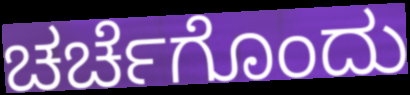
ಚರ್ಚೆಗೊಂದು